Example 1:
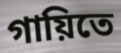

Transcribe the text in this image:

গায়িতে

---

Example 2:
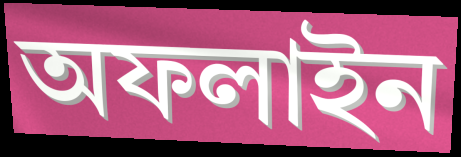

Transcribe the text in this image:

অফলাইন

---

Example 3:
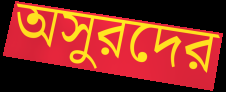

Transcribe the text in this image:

অসুরদের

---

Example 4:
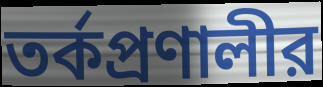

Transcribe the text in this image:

তর্কপ্রণালীর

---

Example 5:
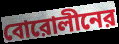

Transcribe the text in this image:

বোরোলীনের